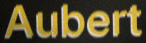
Aubert